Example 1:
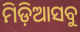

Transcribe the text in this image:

ମିଡ଼ିଆସବୁ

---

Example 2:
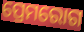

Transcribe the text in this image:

ପ୍ରେମରୋଗ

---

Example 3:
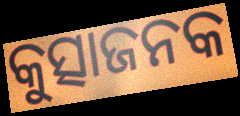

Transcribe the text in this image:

କୁତ୍ସାଜନକ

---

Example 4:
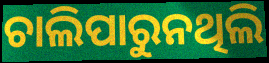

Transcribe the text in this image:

ଚାଲିପାରୁନଥିଲି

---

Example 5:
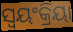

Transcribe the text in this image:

ସ୍ବୟଂକ୍ରିୟା